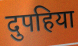
दुपहिया